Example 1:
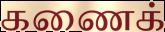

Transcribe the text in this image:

கணைக்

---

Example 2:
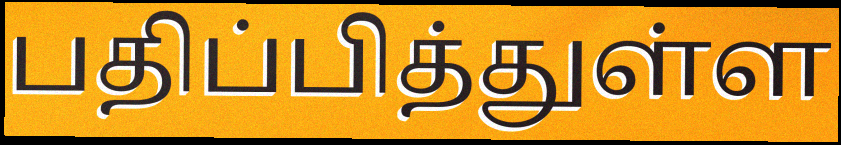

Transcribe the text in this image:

பதிப்பித்துள்ள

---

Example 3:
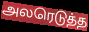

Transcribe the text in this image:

அலரெடுத்த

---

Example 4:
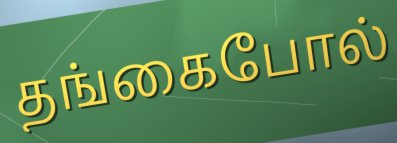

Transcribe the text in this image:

தங்கைபோல்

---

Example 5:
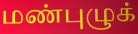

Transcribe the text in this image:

மண்புழுக்